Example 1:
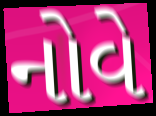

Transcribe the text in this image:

નોવે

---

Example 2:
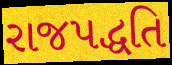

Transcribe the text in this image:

રાજપદ્ધતિ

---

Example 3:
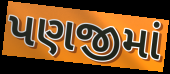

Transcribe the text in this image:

પણજીમાં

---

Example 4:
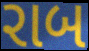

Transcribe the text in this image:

રાબ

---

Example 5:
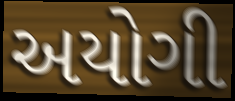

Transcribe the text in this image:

અયોગી